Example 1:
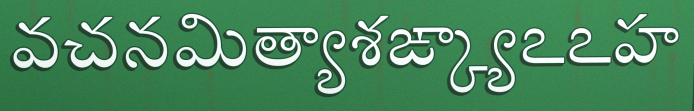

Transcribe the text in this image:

వచనమిత్యాశఙ్క్యాఽఽహ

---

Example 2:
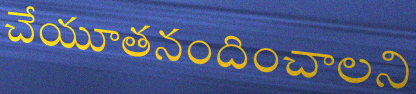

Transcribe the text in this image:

చేయూతనందించాలని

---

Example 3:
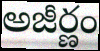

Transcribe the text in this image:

అజీర్ణం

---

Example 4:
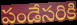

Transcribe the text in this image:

పండేసరికి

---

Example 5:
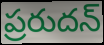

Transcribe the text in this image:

ప్రరుదన్